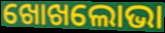
ଖୋଖଲୋଭା